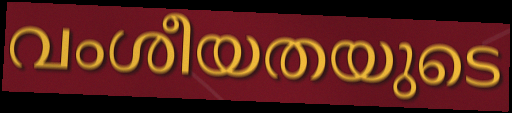
വംശീയതയുടെ